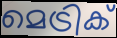
മെട്രിക്